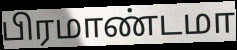
பிரமாண்டமா